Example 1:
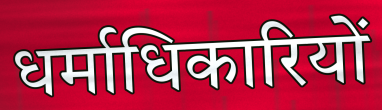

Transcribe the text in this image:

धर्माधिकारियों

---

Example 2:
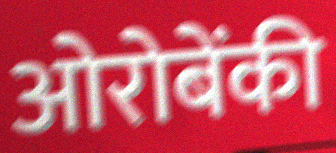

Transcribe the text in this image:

ओरोबेंकी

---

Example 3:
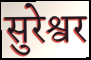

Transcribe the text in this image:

सुरेश्वर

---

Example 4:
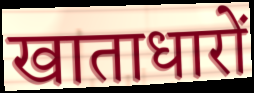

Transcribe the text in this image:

खाताधारों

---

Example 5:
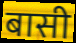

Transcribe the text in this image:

बासी